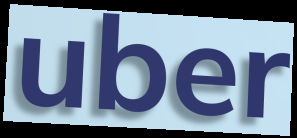
uber